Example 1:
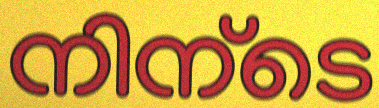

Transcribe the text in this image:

നിന്ടെ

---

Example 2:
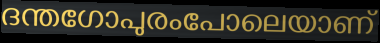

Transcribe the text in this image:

ദന്തഗോപുരംപോലെയാണ്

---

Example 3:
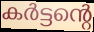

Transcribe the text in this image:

കർട്ടന്റെ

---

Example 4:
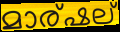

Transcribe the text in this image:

മാര്ഷല്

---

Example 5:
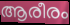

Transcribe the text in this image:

ആരീരം